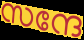
സന്ദേ